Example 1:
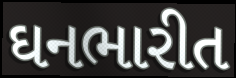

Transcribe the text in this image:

ઘનભારીત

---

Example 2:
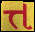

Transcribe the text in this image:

ત્ત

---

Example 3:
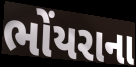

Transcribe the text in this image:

ભોંયરાના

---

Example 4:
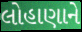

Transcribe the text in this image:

લોહાણાને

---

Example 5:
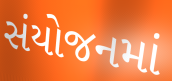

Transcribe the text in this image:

સંયોજનમાં